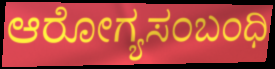
ಆರೋಗ್ಯಸಂಬಂಧಿ